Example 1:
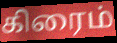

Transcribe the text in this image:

கிரைம்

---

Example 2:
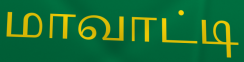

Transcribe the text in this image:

மாவாட்டி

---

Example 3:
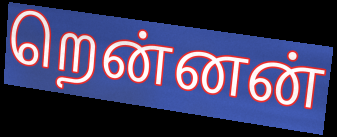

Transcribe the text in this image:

றென்னன்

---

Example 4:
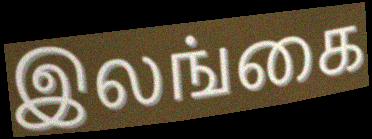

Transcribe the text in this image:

இலங்கை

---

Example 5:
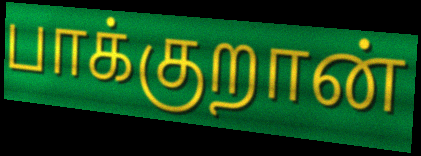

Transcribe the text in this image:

பாக்குறான்